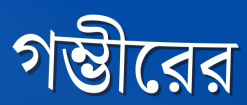
গম্ভীরের